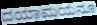
ದಯಾಮಯನೂ